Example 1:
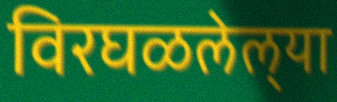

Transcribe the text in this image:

विरघळलेल्या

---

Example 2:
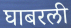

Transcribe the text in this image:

घाबरली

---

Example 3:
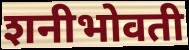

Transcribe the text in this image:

शनीभोवती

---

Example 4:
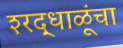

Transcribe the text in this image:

श्रद्धाळूंचा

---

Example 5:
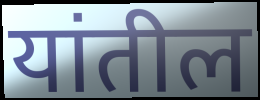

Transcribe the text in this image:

यांतील